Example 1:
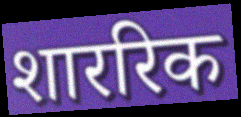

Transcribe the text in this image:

शाररिक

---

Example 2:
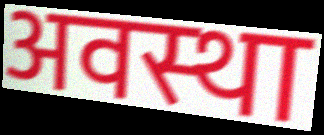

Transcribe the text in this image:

अवस्था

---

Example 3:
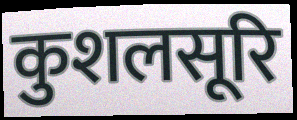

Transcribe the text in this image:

कुशलसूरि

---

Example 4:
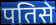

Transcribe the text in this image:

पतिसे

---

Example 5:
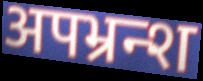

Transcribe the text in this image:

अपभ्रन्श